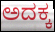
ಅದಕ್ಕ